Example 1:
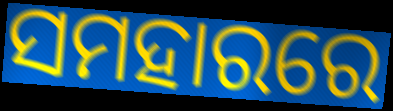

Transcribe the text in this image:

ସମହାରରେ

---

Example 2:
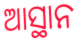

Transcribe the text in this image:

ଆସ୍ଥାନ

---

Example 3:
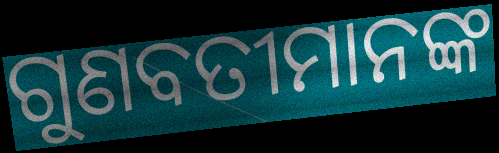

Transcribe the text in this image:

ଗୁଣବତୀମାନଙ୍କ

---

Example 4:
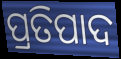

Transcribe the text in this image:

ପ୍ରତିପାଦ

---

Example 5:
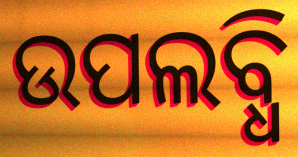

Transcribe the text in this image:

ଉପଲବ୍ଧି